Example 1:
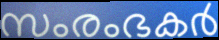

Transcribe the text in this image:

സംരംഭകർ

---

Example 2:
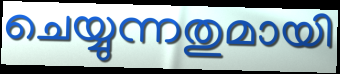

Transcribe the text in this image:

ചെയ്യുന്നതുമായി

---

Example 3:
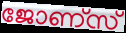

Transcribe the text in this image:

ജോണ്സ്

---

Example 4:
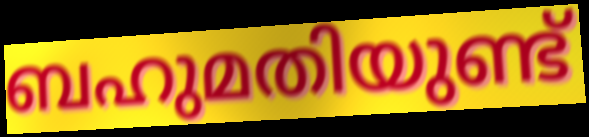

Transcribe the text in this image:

ബഹുമതിയുണ്ട്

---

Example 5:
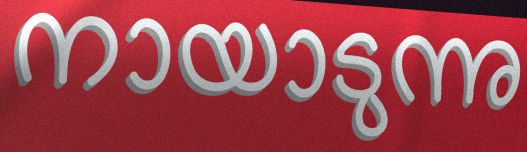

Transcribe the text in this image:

നായാടുന്നു